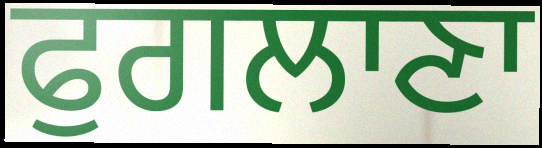
ਫੁਗਲਾਣਾ